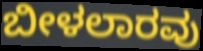
ಬೀಳಲಾರವು